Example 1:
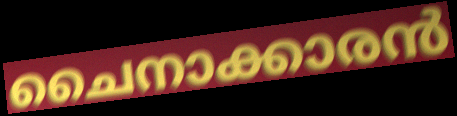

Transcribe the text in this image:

ചൈനാക്കാരൻ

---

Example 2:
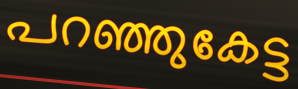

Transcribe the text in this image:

പറഞ്ഞുകേട്ട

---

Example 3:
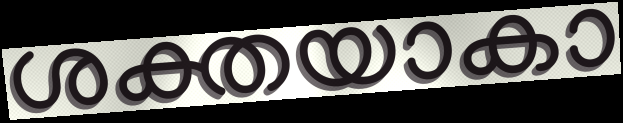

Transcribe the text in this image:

ശക്തയാകാ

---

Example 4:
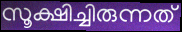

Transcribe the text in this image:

സൂക്ഷിച്ചിരുന്നത്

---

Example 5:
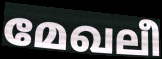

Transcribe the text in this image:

മേഖലീ